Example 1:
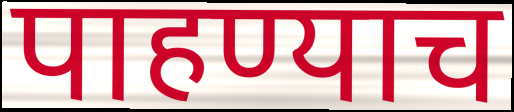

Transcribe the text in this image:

पाहण्याच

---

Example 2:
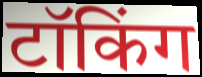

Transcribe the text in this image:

टॉकिंग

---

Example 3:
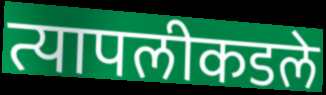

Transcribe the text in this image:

त्यापलीकडले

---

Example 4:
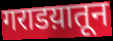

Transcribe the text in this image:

गराडय़ातून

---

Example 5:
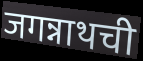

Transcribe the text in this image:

जगन्नाथची